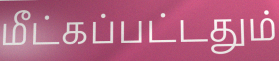
மீட்கப்பட்டதும்